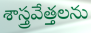
శాస్త్రవేత్తలను